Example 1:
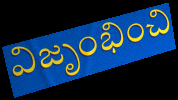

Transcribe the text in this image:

విజృంభించి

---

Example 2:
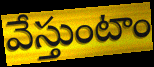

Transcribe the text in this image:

వేస్తుంటాం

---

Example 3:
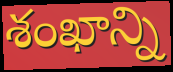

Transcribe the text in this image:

శంఖాన్ని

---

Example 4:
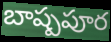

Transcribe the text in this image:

బాష్పపూర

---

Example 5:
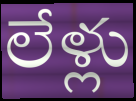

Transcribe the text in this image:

లేళ్లు